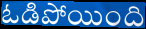
ఓడిపోయింది